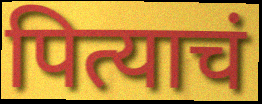
पित्याचं